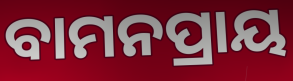
ବାମନପ୍ରାୟ